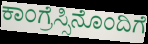
ಕಾಂಗ್ರೆಸ್ಸಿನೊಂದಿಗೆ